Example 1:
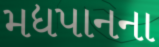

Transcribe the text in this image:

મદ્યપાનના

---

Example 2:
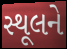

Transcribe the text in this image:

સ્થૂલને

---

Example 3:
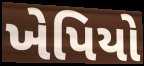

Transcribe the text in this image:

ખેપિયો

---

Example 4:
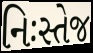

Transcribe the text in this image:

નિઃસ્તેજ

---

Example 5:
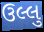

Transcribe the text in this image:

ઉલ્લુ